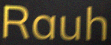
Rauh